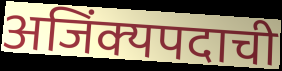
अजिंक्यपदाची